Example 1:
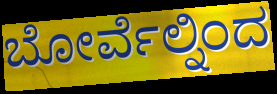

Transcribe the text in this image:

ಬೋರ್ವೆಲ್ನಿಂದ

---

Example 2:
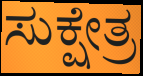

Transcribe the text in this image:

ಸುಕ್ಷೇತ್ರ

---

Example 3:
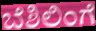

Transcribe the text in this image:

ಬೆಶಿಲಿಂಗೆ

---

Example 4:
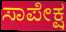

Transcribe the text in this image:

ಸಾಪೇಕ್ಷ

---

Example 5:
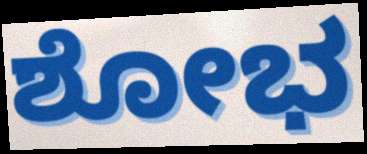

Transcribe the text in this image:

ಶೋಭ